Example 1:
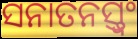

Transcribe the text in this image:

ସନାତନସ୍ତ୍ୱଂ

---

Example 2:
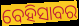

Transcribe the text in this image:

ବେହିସାବର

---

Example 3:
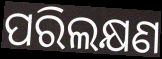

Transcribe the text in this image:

ପରିଲକ୍ଷଣ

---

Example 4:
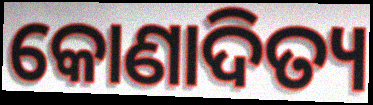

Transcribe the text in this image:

କୋଣାଦିତ୍ୟ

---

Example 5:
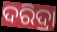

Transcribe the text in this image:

ଦରିଦ୍ରା